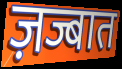
ज़ज्बात